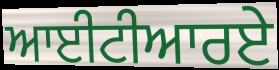
ਆਈਟੀਆਰਏ